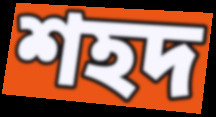
শহদ